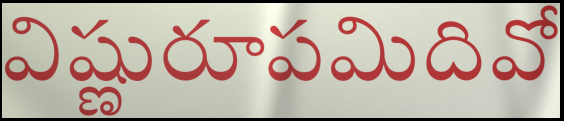
విష్ణురూపమిదివో